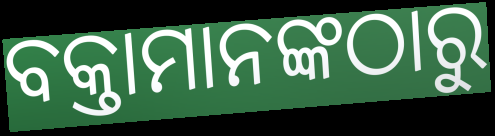
ବକ୍ତାମାନଙ୍କଠାରୁ